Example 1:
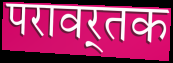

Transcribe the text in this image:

परावर्तक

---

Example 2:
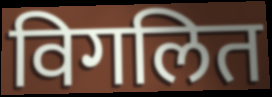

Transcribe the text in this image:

विगलित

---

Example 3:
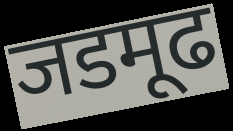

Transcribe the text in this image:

जडमूढ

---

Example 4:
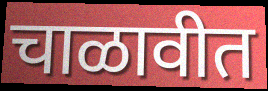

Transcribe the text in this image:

चाळावीत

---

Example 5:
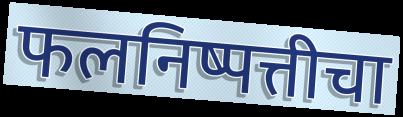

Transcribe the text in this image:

फलनिष्पत्तीचा